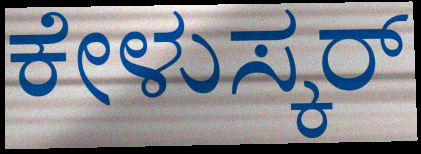
ಕೇಳುಸ್ಕರ್